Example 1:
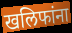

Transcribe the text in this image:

खलिफांना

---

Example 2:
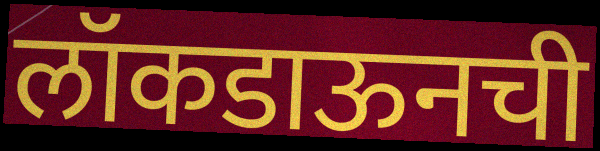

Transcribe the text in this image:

लॉकडाऊनची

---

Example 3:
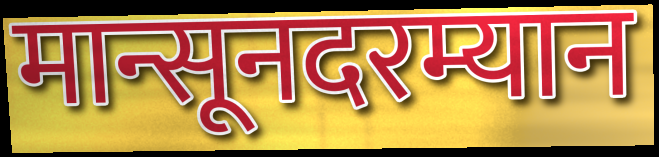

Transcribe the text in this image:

मान्सूनदरम्यान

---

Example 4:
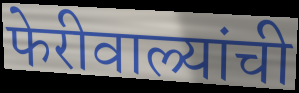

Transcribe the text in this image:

फेरीवाल्यांची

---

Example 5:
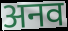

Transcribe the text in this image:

अनव